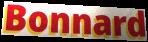
Bonnard